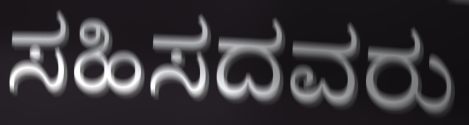
ಸಹಿಸದವರು